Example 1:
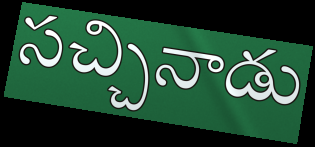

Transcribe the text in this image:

సచ్చినాడు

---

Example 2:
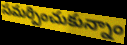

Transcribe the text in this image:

సమర్పించుకున్నాం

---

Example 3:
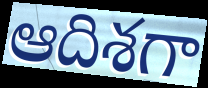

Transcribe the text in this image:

ఆదిశగా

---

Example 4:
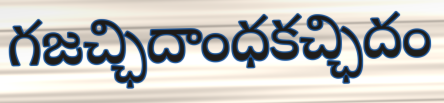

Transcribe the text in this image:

గజచ్ఛిదాంధకచ్ఛిదం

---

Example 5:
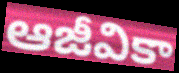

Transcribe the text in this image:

ఆజీవికా